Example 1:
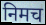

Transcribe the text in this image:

निमच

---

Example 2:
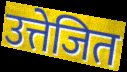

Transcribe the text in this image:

उत्तेजित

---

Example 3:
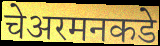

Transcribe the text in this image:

चेअरमनकडे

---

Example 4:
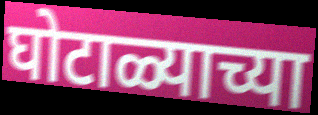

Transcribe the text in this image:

घोटाळ्याच्या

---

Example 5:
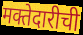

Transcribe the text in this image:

मक्तेदारीची